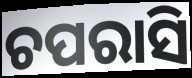
ଚପରାସି